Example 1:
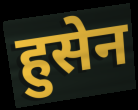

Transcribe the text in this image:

हुसेन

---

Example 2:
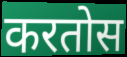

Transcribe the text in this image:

करतोस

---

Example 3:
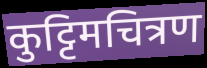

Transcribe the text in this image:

कुट्टिमचित्रण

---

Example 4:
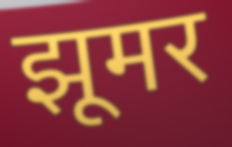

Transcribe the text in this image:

झूमर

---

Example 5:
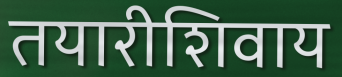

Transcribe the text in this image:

तयारीशिवाय